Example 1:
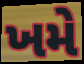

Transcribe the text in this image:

ખમે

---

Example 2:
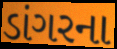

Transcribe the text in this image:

ડાંગરના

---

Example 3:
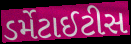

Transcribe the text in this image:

ડર્મેટાઈટીસ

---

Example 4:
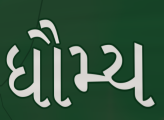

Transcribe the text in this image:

ધૌમ્ય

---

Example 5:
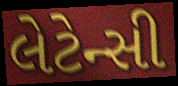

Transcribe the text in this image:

લેટેન્સી